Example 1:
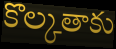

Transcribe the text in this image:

కొల్కతాకు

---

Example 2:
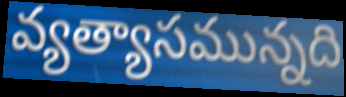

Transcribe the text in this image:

వ్యత్యాసమున్నది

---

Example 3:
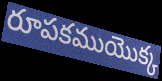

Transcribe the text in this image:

రూపకముయొక్క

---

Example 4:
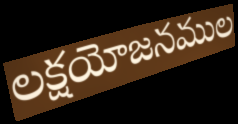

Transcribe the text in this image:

లక్షయోజనముల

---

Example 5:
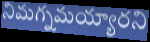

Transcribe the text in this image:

నిమగ్నమయ్యారని